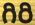
గిరి